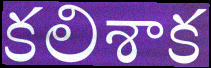
కలిశాక